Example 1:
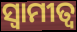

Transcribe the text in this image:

ସ୍ଵାମୀତ୍ବ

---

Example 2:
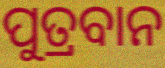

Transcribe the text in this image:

ପୁତ୍ରବାନ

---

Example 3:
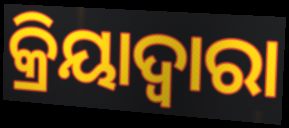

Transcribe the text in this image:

କ୍ରିୟାଦ୍ଵାରା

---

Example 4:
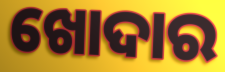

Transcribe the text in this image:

ଖୋଦାର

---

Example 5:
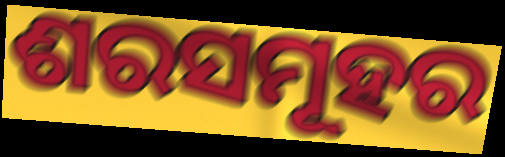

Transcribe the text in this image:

ଶରସମୂହର